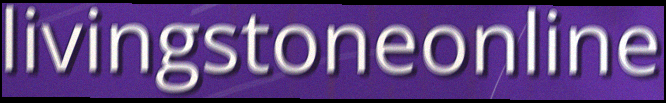
livingstoneonline